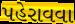
પહેરાવવા